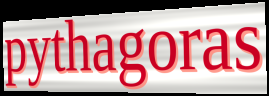
pythagoras